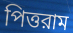
পিত্তরাম